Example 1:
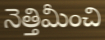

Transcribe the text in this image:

నెత్తిమీంచి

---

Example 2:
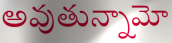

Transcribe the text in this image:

అవుతున్నామో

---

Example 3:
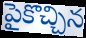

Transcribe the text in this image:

పైకొచ్చిన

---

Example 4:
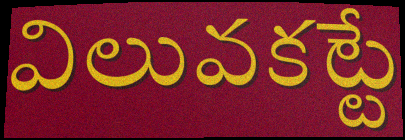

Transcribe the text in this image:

విలువకట్టే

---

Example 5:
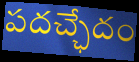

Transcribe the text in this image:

పదచ్ఛేదం